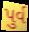
પુર્વ